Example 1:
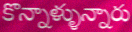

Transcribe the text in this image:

కొన్నాళ్ళున్నారు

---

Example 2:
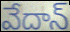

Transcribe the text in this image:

వేదాన్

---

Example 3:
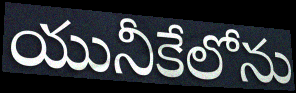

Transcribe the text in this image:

యునీకేలోను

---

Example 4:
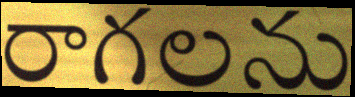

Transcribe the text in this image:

రాగలను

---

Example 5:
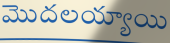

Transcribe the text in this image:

మొదలయ్యాయి